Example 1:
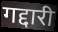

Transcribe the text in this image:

गद्दारी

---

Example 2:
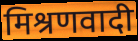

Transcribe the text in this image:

मिश्रणवादी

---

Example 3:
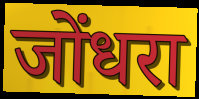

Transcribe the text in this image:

जोंधरा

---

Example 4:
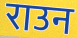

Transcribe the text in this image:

राउन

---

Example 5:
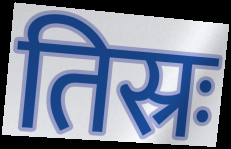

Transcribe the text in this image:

तिस्रः